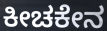
ಕೀಚಕೇನ